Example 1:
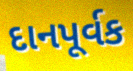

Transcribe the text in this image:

દાનપૂર્વક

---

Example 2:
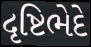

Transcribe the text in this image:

દૃષ્ટિભેદે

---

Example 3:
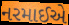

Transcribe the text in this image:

નરમાઈએ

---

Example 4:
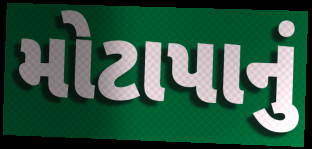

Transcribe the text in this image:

મોટાપાનું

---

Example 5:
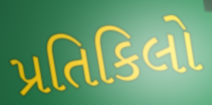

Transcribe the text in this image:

પ્રતિકિલો